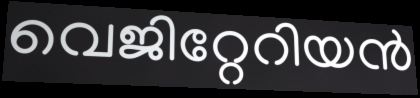
വെജിറ്റേറിയൻ